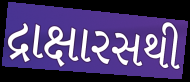
દ્રાક્ષારસથી